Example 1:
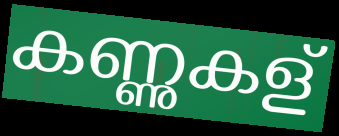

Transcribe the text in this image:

കണ്ണുകള്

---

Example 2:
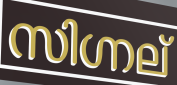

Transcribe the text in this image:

സിഗ്നല്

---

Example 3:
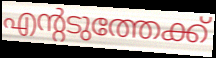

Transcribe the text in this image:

എന്റടുത്തേക്ക്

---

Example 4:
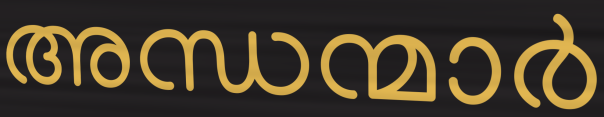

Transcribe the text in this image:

അന്ധന്മാർ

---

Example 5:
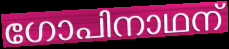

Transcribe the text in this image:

ഗോപിനാഥന്